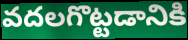
వదలగొట్టడానికి